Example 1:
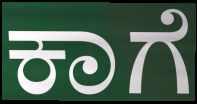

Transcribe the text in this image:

ಕಾಗೆ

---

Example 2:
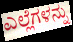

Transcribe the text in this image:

ಎಲ್ಲೆಗಳನ್ನು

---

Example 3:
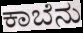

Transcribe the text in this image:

ಕಾಬೆನು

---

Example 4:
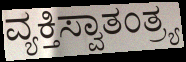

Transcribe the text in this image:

ವ್ಯಕ್ತಿಸ್ವಾತಂತ್ರ್ಯ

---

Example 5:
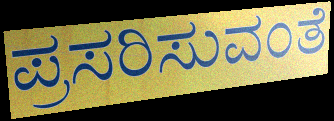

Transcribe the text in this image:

ಪ್ರಸರಿಸುವಂತೆ